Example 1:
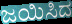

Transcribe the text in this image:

ಜಯಿಸಿದ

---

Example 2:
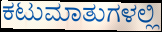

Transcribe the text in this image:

ಕಟುಮಾತುಗಳಲ್ಲಿ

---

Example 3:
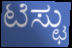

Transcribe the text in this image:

ಟೆಸ್ಟು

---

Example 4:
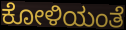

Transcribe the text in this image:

ಕೋಳಿಯಂತೆ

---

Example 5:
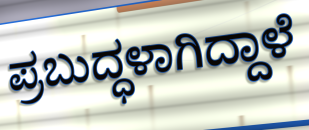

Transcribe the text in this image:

ಪ್ರಬುದ್ಧಳಾಗಿದ್ದಾಳೆ